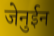
जेनुईन